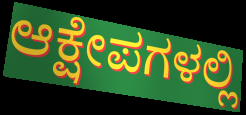
ಆಕ್ಷೇಪಗಳಲ್ಲಿ